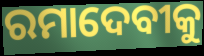
ରମାଦେବୀକୁ